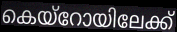
കെയ്റോയിലേക്ക്